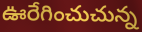
ఊరేగించుచున్న